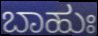
ಬಾಹುಃ